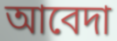
আবেদা